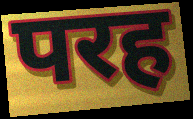
परह